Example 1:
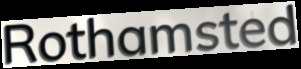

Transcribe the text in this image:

Rothamsted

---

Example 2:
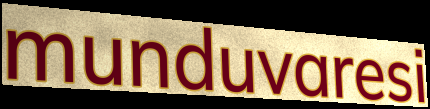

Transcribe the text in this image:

munduvaresi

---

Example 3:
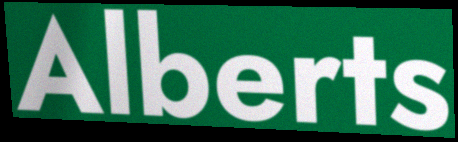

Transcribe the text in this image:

Alberts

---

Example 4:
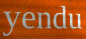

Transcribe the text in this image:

yendu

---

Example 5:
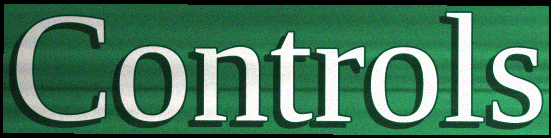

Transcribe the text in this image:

Controls